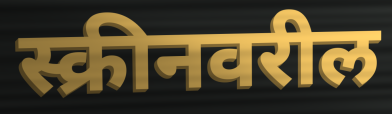
स्क्रीनवरील